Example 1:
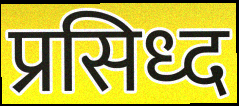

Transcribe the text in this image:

प्रसिध्द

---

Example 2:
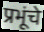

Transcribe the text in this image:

प्रभूंचे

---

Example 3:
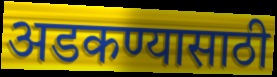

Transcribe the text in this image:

अडकण्यासाठी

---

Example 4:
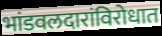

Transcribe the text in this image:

भांडवलदारांविरोधात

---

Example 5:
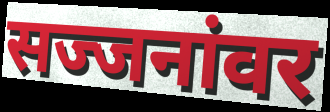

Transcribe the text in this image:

सज्जनांवर